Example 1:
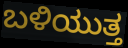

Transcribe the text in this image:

ಬಳಿಯುತ್ತ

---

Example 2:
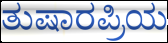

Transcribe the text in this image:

ತುಷಾರಪ್ರಿಯ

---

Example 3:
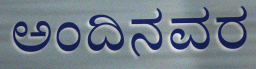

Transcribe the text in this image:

ಅಂದಿನವರ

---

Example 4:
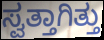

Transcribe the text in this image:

ಸ್ವತ್ತಾಗಿತ್ತು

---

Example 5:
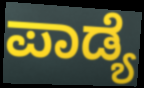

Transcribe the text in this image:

ಪಾಡ್ಯೆ